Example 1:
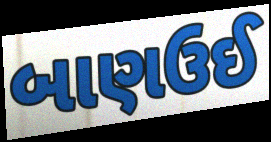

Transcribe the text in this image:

બાણઉઈ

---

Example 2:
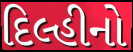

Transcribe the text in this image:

દિલ્હીનો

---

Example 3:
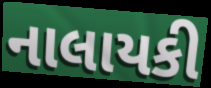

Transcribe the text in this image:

નાલાયકી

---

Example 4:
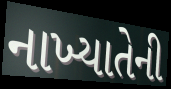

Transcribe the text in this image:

નાખ્યાતેની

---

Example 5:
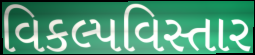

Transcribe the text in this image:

વિકલ્પવિસ્તાર